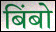
बिंबो